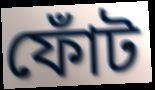
ফোঁট